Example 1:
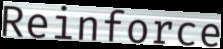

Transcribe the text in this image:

Reinforce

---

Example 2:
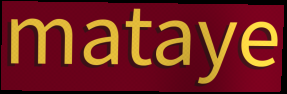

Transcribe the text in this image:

mataye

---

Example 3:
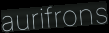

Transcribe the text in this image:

aurifrons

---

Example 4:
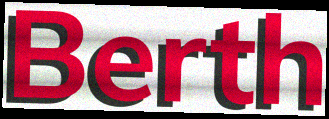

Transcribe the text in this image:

Berth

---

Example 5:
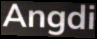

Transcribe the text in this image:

Angdi